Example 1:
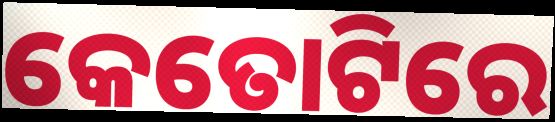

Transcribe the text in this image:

କେତୋଟିରେ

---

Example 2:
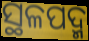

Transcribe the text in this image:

ସ୍ଥଳପଦ୍ମ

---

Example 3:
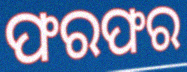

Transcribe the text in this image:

ଫରଫର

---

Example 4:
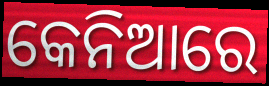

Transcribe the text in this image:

କେନିଆରେ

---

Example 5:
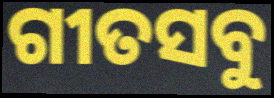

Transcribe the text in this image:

ଗୀତସବୁ